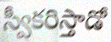
స్వీకరిస్తాడో